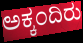
ಅಕ್ಕಂದಿರು